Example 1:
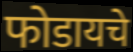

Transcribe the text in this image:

फोडायचे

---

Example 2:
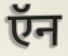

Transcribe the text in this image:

ऍन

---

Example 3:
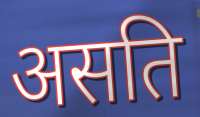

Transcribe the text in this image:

असति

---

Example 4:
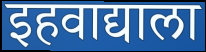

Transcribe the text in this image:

इहवाद्याला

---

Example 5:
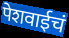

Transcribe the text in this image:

पेशवाईचं